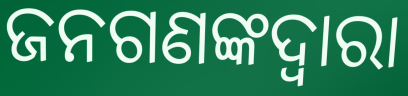
ଜନଗଣଙ୍କଦ୍ୱାରା